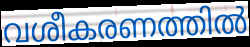
വശീകരണത്തിൽ